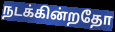
நடக்கின்றதோ